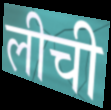
लीची